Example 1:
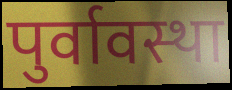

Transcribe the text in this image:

पुर्वावस्था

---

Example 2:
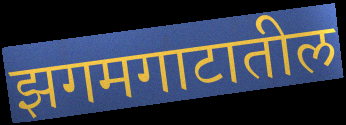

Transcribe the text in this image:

झगमगाटातील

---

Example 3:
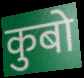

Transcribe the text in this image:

कुबो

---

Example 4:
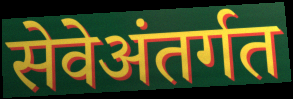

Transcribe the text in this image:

सेवेअंतर्गत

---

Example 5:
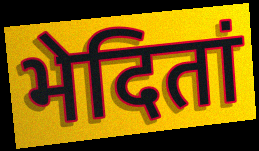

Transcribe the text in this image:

भेदितां